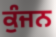
ਕੁੰਜਨ